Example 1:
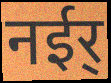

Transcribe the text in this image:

नईर्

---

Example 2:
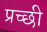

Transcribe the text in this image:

प्रच्छी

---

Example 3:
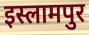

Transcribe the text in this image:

इस्लामपुर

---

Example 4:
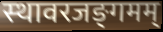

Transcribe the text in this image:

स्थावरजङ्गमम्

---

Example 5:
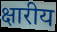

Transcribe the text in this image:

क्षारीय